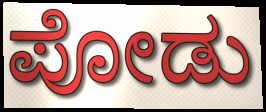
ಪೋಡು